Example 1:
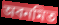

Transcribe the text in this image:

অবনমিত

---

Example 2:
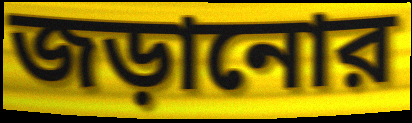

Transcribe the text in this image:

জড়ানোর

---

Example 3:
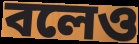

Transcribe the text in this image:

বলেও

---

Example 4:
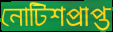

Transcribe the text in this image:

নোটিশপ্রাপ্ত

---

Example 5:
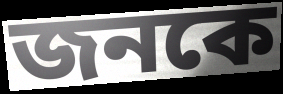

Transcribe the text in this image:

জনকে